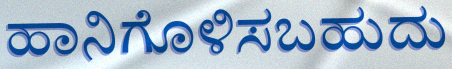
ಹಾನಿಗೊಳಿಸಬಹುದು